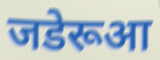
जडेरूआ